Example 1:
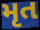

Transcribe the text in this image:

મૃત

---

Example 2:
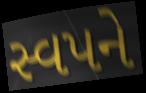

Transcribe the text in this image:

સ્વપને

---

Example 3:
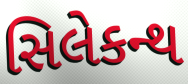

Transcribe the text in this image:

સિલેકન્થ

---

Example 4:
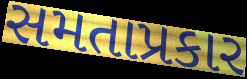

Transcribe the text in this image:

સમતાપ્રકાર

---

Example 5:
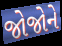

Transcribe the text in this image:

જોજોને